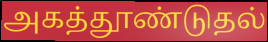
அகத்தூண்டுதல்